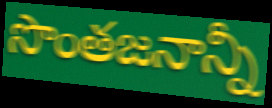
సొంతజనాన్నీ